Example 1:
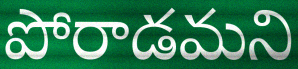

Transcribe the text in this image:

పోరాడమని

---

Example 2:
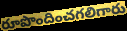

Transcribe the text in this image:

రూపొందించగలిగారు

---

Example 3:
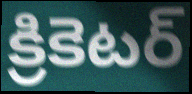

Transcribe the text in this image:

క్రికెటర్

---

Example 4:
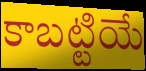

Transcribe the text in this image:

కాబట్టియే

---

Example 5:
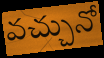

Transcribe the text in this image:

వచ్చునో